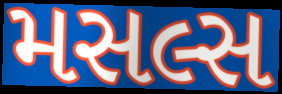
મસલ્સ